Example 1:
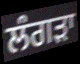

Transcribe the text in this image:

ਲੰਗੜਾ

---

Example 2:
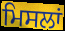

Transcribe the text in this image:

ਮਿਸਲਾਂ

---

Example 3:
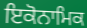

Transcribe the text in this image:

ਇਕੋਨਾਮਿਕ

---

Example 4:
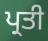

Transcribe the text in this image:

ਪ੍ਰਤੀ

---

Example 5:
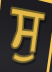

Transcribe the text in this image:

ਸੁ